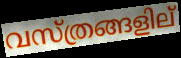
വസ്ത്രങ്ങളില്